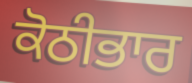
ਕੋਠੀਭਾਰ